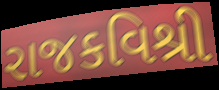
રાજકવિશ્રી